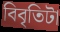
বিবৃতিটা